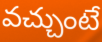
వచ్చుంటే